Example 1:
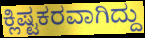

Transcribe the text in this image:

ಕ್ಲಿಷ್ಟಕರವಾಗಿದ್ದು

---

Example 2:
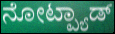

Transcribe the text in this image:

ನೋಟ್ಪ್ಯಾಡ್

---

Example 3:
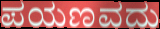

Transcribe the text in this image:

ಪಯಣವದು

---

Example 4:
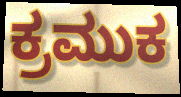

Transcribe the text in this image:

ಕ್ರಮುಕ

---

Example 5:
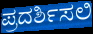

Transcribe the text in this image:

ಪ್ರದರ್ಶಿಸಲಿ